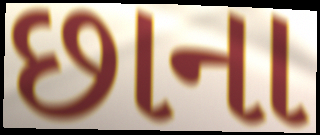
છાના